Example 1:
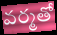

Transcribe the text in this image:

వర్మతో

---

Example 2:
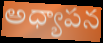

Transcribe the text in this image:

అధ్యాపన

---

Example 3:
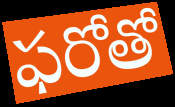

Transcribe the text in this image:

ఫరోతో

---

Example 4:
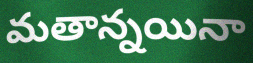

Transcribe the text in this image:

మతాన్నయినా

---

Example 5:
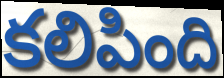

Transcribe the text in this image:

కలిపింది